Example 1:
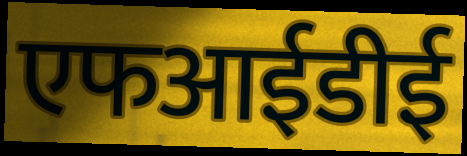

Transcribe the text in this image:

एफआईडीई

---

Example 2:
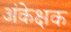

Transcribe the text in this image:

अंकेक्षक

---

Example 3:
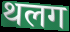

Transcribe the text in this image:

थलग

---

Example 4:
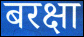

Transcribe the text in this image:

बरक्षा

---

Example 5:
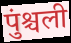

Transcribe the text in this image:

पुंश्चली